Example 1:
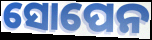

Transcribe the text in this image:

ସୋପେନ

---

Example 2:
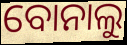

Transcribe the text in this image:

ବୋନାଲୁ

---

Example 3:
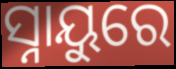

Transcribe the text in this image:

ସ୍ନାୟୁରେ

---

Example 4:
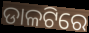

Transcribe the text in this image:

ଡାଳଟିରେ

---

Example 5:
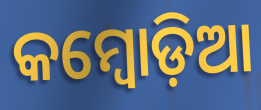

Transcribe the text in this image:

କମ୍ୱୋଡ଼ିଆ